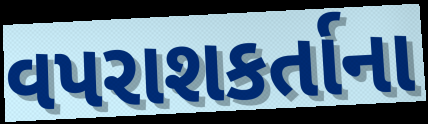
વપરાશકર્તાના